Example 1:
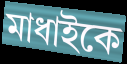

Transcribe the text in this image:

মাধাইকে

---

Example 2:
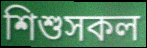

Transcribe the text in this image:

শিশুসকল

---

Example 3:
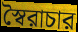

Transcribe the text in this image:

স্বৈরাচার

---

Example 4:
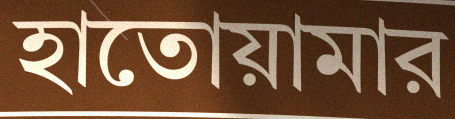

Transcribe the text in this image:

হাতোয়ামার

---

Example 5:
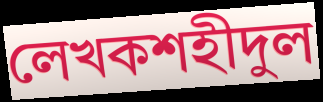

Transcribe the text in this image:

লেখকশহীদুল